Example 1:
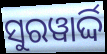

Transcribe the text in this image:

ସୁରୱାର୍ଦ୍ଦି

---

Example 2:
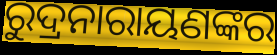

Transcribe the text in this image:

ରୁଦ୍ରନାରାୟଣଙ୍କର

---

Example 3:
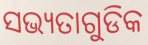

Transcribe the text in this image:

ସଭ୍ୟତାଗୁଡିକ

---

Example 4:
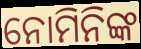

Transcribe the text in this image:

ନୋମିନିଙ୍କ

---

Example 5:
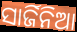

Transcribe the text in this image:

ସାର୍ଜିନିଆ